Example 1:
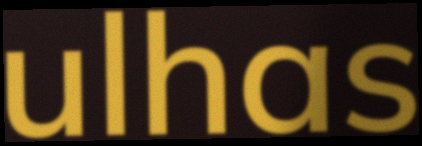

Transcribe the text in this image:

ulhas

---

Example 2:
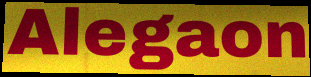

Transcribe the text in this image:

Alegaon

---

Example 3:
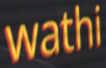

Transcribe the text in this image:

wathi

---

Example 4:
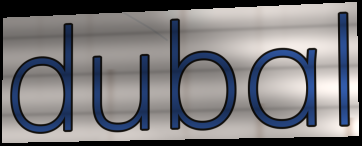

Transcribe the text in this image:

dubal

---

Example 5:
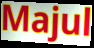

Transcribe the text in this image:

Majul